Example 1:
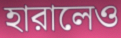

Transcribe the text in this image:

হারালেও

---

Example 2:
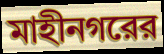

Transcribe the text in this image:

মাহীনগরের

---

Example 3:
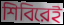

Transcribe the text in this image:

শিবিরেই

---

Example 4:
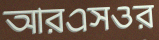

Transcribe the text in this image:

আরএসওর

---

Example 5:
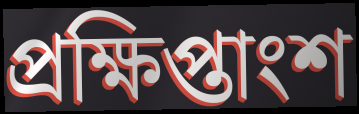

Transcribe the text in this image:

প্রক্ষিপ্তাংশ